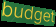
budget